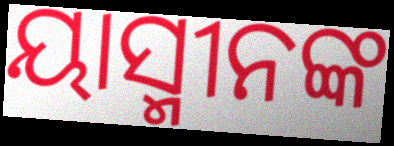
ୟାସ୍ମୀନଙ୍କ